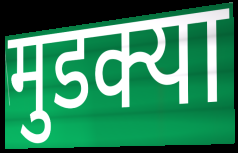
मुडक्या